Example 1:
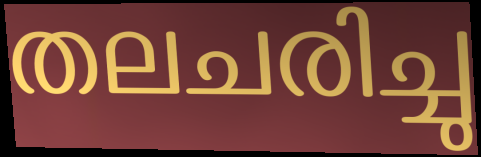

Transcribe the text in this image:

തലചരിച്ചു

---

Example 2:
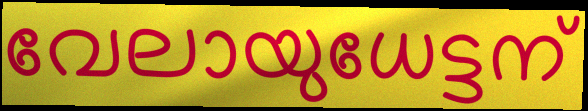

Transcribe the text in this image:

വേലായുധേട്ടന്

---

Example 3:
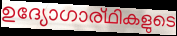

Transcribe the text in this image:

ഉദ്യോഗാര്ഥികളുടെ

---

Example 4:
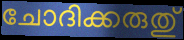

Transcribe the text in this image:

ചോദിക്കരുതു്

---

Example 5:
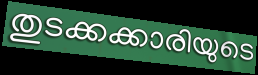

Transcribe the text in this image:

തുടക്കക്കാരിയുടെ